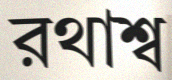
রথাশ্ব